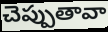
చెప్పుతావా